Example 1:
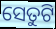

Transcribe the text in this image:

ସେତୁଟି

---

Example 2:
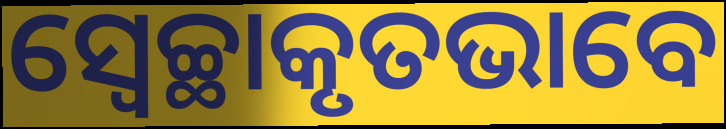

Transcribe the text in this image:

ସ୍ୱେଚ୍ଛାକୃତଭାବେ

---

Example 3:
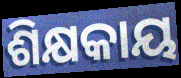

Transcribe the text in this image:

ଶିକ୍ଷକାୟ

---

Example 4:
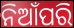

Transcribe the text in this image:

ନିଆଁପରି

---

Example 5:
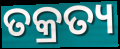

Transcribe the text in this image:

ତକ୍ରତ୍ୟ